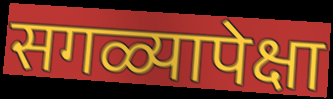
सगळ्यापेक्षा